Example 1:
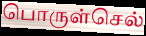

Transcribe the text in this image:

பொருள்செல்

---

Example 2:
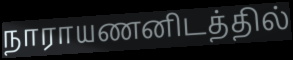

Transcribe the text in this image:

நாராயணனிடத்தில்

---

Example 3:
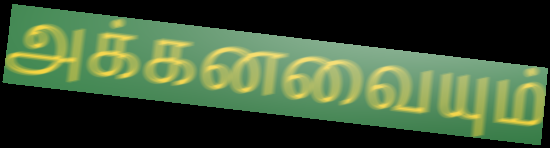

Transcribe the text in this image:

அக்கனவையும்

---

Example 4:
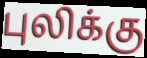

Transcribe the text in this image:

புலிக்கு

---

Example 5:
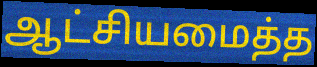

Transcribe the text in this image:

ஆட்சியமைத்த